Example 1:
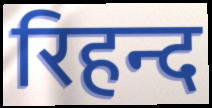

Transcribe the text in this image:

रिहन्द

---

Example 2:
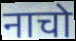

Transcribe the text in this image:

नाचो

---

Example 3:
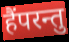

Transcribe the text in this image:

हैंपरन्तु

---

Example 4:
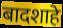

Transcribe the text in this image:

बादशाहे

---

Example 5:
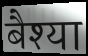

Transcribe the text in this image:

बैश्या